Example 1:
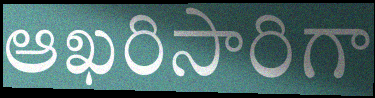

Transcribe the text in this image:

ఆఖరిసారిగా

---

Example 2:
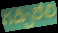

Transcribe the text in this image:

గడ్చిరోలి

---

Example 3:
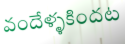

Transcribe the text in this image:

వందేళ్ళకిందట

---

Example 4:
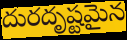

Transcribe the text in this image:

దురదృష్టమైన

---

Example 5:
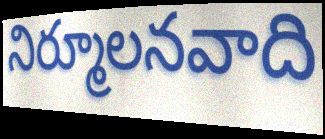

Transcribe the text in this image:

నిర్మూలనవాది